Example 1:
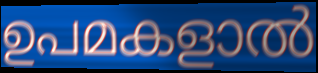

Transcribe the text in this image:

ഉപമകളാൽ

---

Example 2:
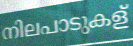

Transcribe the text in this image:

നിലപാടുകള്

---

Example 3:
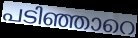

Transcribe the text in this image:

പടിഞ്ഞാറെ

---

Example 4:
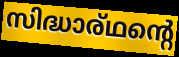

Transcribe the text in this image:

സിദ്ധാര്ഥന്റെ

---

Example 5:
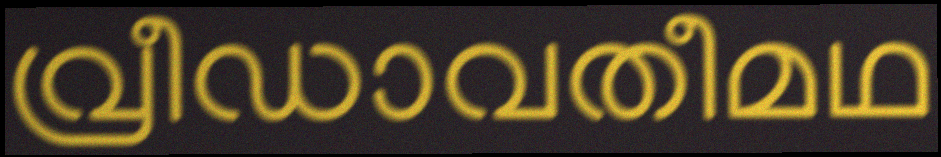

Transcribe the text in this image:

വ്രീഡാവതീമഥ